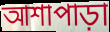
আশাপাড়া